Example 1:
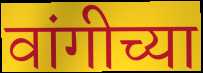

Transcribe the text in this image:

वांगीच्या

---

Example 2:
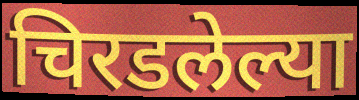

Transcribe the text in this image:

चिरडलेल्या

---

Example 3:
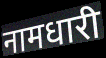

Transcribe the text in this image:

नामधारी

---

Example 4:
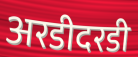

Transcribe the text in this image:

अरडीदरडी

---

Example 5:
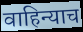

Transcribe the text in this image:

वाहिन्याच